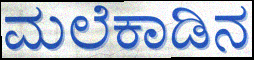
ಮಲೆಕಾಡಿನ